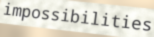
impossibilities